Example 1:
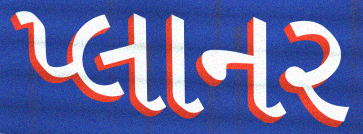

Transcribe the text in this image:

પ્લાનર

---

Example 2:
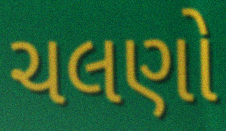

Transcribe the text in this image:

ચલણો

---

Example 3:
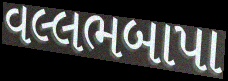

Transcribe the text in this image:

વલ્લભબાપા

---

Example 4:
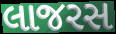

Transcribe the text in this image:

લાજરસ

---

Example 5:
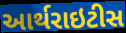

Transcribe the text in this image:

આર્થરાઇટીસ